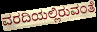
ವರದಿಯಲ್ಲಿರುವಂತೆ